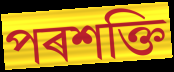
পৰশক্তি